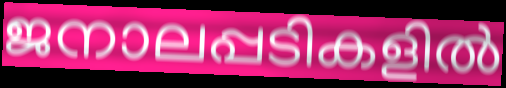
ജനാലപ്പടികളിൽ